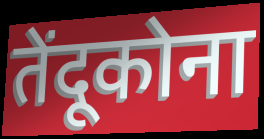
तेंदूकोना